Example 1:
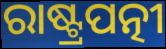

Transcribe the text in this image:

ରାଷ୍ଟ୍ରପତ୍ନୀ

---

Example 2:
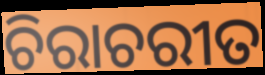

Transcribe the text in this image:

ଚିରାଚରୀତ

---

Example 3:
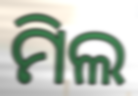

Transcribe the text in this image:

ମିଲ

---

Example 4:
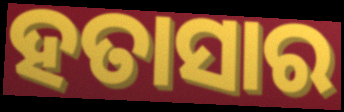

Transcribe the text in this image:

ହତାସାର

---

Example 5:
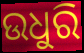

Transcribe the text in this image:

ଉଧୁରି